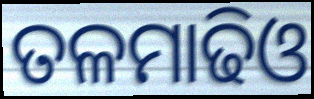
ତଳମାଢିଓ